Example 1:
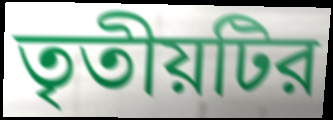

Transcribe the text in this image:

তৃতীয়টির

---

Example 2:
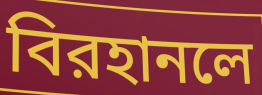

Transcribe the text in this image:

বিরহানলে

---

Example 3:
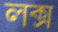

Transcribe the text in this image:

লক্স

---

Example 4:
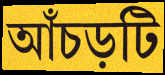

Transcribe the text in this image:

আঁচড়টি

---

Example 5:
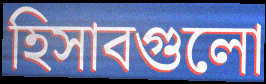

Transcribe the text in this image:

হিসাবগুলো